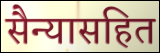
सैन्यासहित